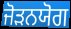
ਜੋੜਨਯੋਗ